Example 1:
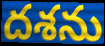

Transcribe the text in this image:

దశను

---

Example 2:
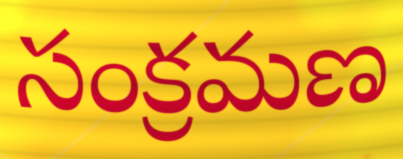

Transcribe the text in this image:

సంక్రమణ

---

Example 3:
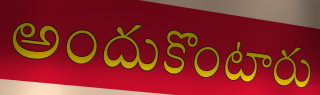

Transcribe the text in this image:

అందుకొంటారు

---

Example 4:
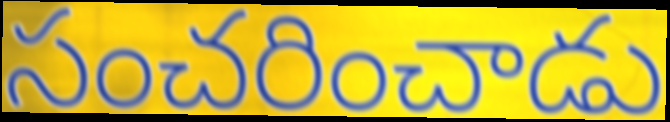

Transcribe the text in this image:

సంచరించాడు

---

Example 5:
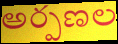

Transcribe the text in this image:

అర్పణల